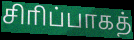
சிரிப்பாகத்